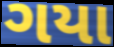
ગયા